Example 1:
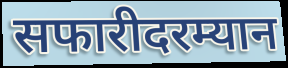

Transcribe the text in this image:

सफारीदरम्यान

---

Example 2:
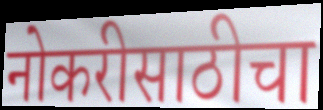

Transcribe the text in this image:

नोकरीसाठीचा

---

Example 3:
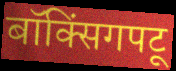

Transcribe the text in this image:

बॉक्सिंगपटू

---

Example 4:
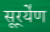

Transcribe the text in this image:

सूर्ये॑ण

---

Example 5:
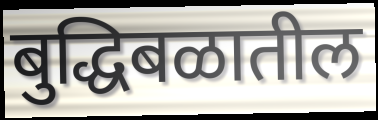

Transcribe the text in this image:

बुद्धिबळातील